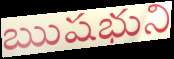
ఋషభుని